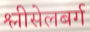
श्लीसेलबर्ग